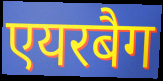
एयरबैग